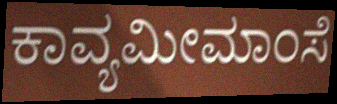
ಕಾವ್ಯಮೀಮಾಂಸೆ